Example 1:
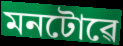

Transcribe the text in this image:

মনটোৱে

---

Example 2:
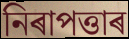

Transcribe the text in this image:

নিৰাপত্তাৰ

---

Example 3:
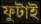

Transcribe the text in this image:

ফুটাই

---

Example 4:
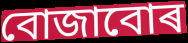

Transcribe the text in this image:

বোজাবোৰ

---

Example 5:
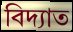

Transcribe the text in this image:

বিদ্যাত